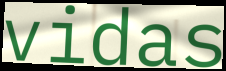
vidas